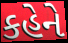
કહેને